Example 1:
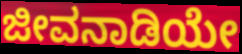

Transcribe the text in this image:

ಜೀವನಾಡಿಯೇ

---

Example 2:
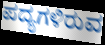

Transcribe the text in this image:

ಪದ್ಯಗಳಿರುವ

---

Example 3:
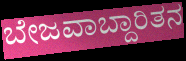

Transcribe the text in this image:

ಬೇಜವಾಬ್ದಾರಿತನ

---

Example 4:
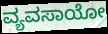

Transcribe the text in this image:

ವ್ಯವಸಾಯೋ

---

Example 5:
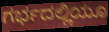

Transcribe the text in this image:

ಗರ್ಭದಲ್ಲಿಯೂ